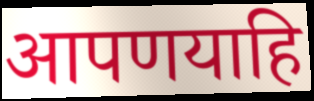
आपणयाहि